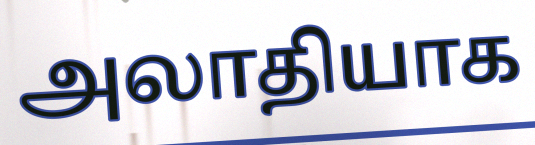
அலாதியாக